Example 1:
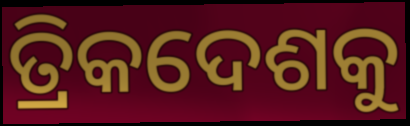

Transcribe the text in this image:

ତ୍ରିକଦେଶକୁ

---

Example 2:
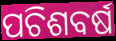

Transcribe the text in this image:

ପଚିଶବର୍ଷ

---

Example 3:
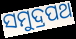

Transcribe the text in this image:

ସମୁଦ୍ରପଥ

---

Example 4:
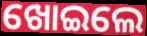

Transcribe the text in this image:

ଖୋଇଲେ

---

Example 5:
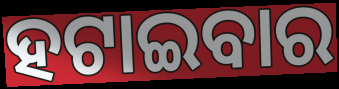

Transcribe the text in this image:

ହଟାଇବାର